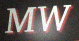
MW